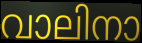
വാലിനാ